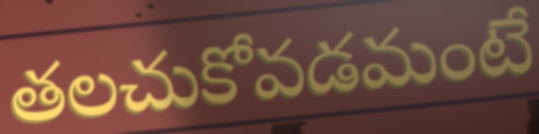
తలచుకోవడమంటే